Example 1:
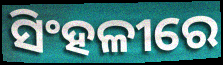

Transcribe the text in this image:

ସିଂହଳୀରେ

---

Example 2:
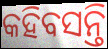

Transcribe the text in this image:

କହିବସନ୍ତି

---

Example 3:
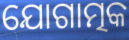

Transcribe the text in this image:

ଯୋଗାତ୍ମକ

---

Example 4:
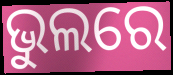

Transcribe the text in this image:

ଭୁଲରେ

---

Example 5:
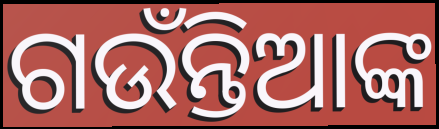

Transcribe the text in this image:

ଗଉଁନ୍ତିଆଙ୍କ